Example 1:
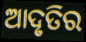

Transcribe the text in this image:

ଆଦୃତିର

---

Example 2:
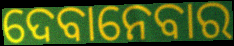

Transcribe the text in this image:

ଦେବାନେବାର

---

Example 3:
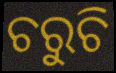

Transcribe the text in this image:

ଚରୁଚି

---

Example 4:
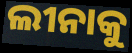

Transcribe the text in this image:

ଲୀନାକୁ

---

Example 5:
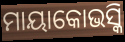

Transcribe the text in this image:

ମାୟାକୋଭସ୍କି